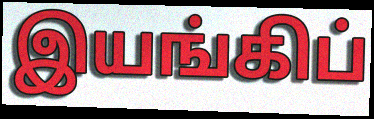
இயங்கிப்